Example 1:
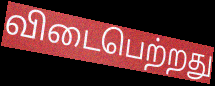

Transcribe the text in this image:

விடைபெற்றது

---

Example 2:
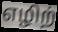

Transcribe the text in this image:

எழிற்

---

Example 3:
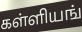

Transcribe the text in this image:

கள்ளியங்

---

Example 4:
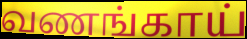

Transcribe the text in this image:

வணங்காய்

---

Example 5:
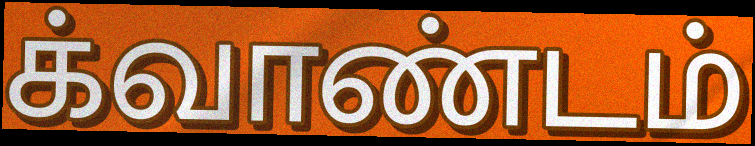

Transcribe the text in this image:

க்வாண்டம்